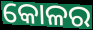
କୋଳର